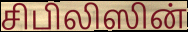
சிபிலிஸின்